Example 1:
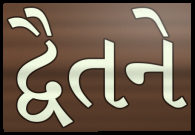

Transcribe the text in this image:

દ્વૈતને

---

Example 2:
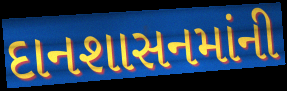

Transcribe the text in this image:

દાનશાસનમાંની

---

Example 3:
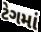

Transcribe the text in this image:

ટેગમાં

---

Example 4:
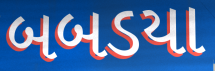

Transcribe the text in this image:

બબડયા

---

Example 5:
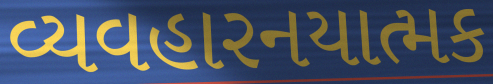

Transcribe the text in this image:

વ્યવહારનયાત્મક